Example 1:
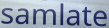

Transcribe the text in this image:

samlate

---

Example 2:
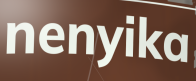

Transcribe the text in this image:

nenyika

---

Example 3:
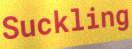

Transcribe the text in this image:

Suckling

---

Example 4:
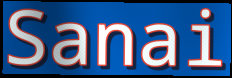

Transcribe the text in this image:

Sanai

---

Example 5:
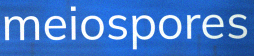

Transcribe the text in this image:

meiospores